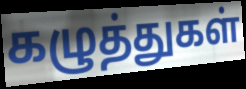
கழுத்துகள்